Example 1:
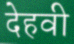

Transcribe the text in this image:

देहवी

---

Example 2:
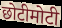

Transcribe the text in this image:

छोटीमोटी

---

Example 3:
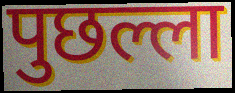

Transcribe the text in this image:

पुछल्ला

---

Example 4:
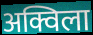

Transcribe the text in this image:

अक्विला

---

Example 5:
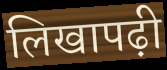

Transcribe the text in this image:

लिखापढ़ी